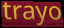
trayo